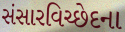
સંસારવિચ્છેદના